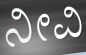
ನೀವಿ